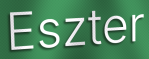
Eszter